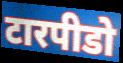
टारपीडो